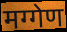
मग्गेण